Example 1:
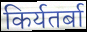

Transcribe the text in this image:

किर्यतर्बा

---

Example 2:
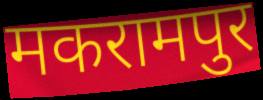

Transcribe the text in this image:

मकरामपुर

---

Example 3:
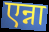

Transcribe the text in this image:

एन्ना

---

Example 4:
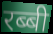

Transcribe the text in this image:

रब्बी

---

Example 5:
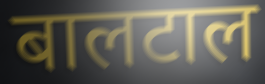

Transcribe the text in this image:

बालटाल